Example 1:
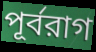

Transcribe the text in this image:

পূর্বরাগ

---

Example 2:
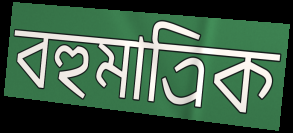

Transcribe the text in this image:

বহুমাত্রিক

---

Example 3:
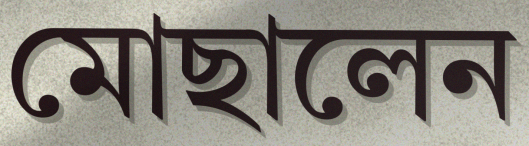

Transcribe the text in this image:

মোছালেন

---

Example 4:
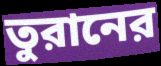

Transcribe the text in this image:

তুরানের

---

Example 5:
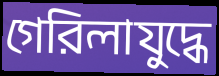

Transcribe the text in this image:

গেরিলাযুদ্ধে